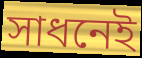
সাধনেই